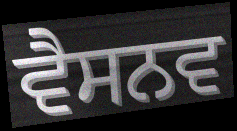
ਵੈਸਨਵ